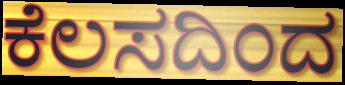
ಕೆಲಸದಿಂದ